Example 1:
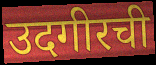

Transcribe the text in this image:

उदगीरची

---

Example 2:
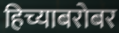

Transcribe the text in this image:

हिच्याबरोबर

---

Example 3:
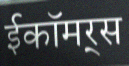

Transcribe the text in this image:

ईकॉमर्स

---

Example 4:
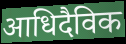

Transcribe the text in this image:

आधिदैविक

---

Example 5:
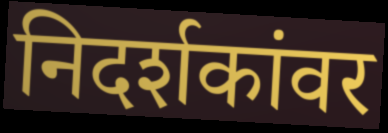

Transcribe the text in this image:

निदर्शकांवर